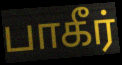
பாகீர்